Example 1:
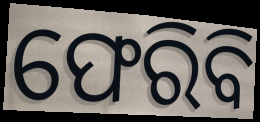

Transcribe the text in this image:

ଫେରିବି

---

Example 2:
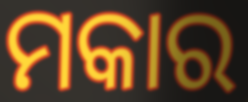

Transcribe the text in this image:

ମକାର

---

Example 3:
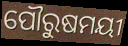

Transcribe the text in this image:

ପୌରୁଷମୟୀ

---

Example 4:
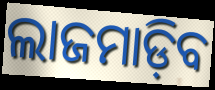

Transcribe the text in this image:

ଲାଜମାଡ଼ିବ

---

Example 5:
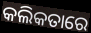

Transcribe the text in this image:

କଲିକତାରେ